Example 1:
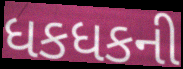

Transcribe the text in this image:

ધકધકની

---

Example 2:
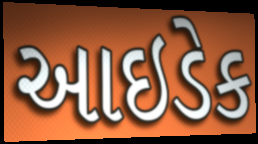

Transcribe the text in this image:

આઇડેક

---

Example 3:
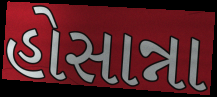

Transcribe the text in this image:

હોસાન્ના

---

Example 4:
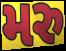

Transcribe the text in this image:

મરુ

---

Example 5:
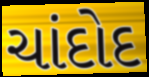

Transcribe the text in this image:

ચાંદોદ